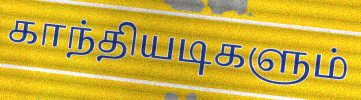
காந்தியடிகளும்